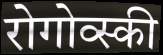
रोगोव्स्की